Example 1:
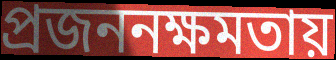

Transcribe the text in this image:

প্রজননক্ষমতায়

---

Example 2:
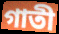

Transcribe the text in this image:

গাতী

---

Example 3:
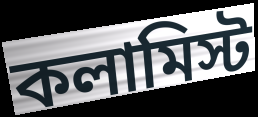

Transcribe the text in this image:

কলামিস্ট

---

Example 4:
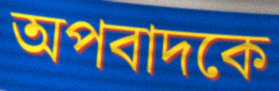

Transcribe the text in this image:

অপবাদকে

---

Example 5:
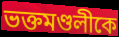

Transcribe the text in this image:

ভক্তমণ্ডলীকে